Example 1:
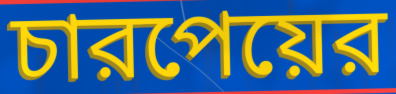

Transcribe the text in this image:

চারপেয়ের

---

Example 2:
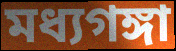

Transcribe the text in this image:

মধ্যগঙ্গা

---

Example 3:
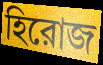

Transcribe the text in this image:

হিরোজ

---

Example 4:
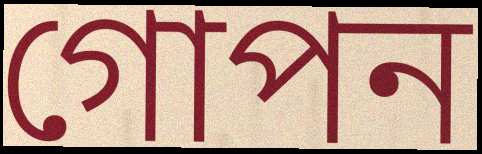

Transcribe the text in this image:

গোপন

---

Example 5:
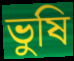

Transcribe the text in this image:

ভুষি